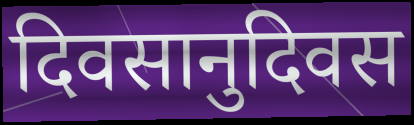
दिवसानुदिवस